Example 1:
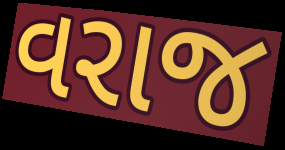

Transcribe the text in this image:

વરાજ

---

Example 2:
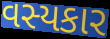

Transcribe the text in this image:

વસ્યકાર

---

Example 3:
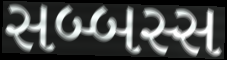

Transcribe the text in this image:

સબ્બસ્સ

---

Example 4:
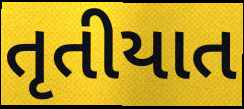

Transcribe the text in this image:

તૃતીયાત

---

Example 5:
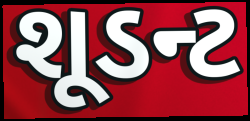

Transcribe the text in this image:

શૂડન્ટ